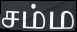
சம்ம